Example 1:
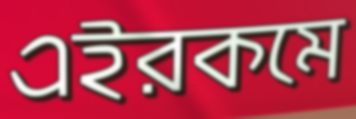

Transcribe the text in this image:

এইরকমে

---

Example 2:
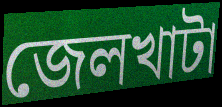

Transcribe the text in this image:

জেলখাটা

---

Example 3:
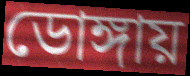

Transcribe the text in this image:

ডোঙ্গায়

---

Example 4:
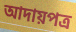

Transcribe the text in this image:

আদায়পত্র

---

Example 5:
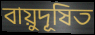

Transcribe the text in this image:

বায়ুদূষিত